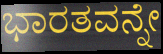
ಭಾರತವನ್ನೇ